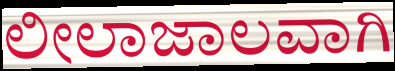
ಲೀಲಾಜಾಲವಾಗಿ